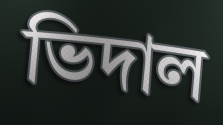
ভিদাল